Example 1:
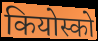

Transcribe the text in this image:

कियोस्को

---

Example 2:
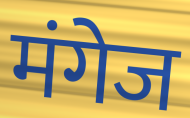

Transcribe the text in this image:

मंगेज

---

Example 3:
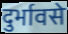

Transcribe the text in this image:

दुर्भावसे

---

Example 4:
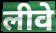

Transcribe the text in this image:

लीवे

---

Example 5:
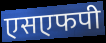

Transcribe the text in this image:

एसएफपी